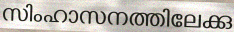
സിംഹാസനത്തിലേക്കു